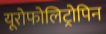
यूरोफोलिट्रोपिन